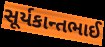
સૂર્યકાન્તભાઈ